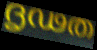
ദൃഢത